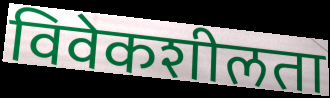
विवेकशीलता